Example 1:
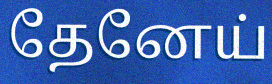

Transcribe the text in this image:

தேனேய்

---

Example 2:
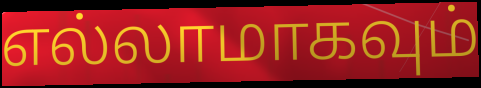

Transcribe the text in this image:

எல்லாமாகவும்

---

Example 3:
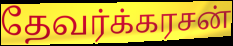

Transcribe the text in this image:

தேவர்க்கரசன்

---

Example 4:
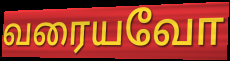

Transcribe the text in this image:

வரையவோ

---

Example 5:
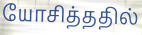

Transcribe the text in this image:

யோசித்ததில்